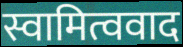
स्वामित्ववाद